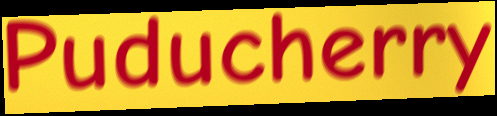
Puducherry